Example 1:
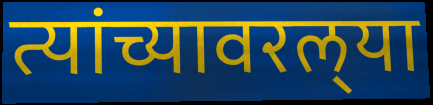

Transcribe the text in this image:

त्यांच्यावरल्या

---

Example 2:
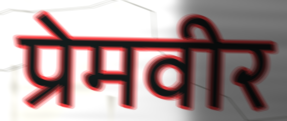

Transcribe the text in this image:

प्रेमवीर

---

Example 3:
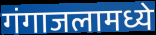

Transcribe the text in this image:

गंगाजलामध्ये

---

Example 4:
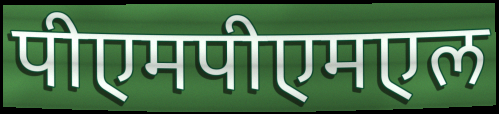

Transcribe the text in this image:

पीएमपीएमएल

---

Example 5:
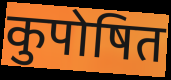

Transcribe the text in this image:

कुपोषित